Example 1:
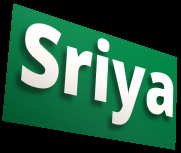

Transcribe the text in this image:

Sriya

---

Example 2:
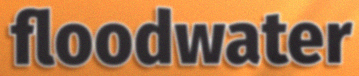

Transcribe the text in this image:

floodwater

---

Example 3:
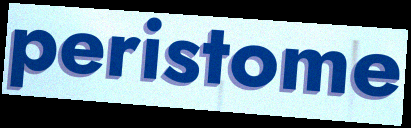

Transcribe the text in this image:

peristome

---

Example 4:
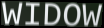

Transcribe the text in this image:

WIDOW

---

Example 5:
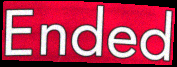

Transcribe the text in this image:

Ended